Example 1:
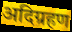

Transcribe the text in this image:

अदिग्रहण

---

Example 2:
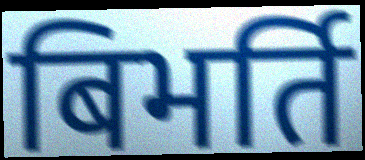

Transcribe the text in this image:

बिभर्ति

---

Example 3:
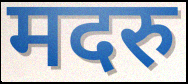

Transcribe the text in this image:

मदरु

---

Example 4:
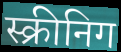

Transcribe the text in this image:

स्क्रीनिग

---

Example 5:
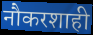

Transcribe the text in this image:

नौकरशाही